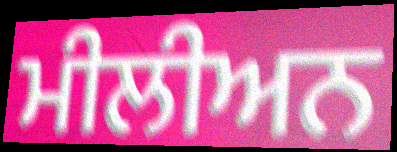
ਮੀਲੀਅਨ